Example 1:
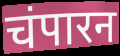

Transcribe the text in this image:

चंपारन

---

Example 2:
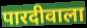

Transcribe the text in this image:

पारदीवाला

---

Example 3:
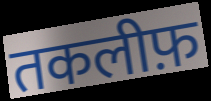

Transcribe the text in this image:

तकलीफ़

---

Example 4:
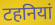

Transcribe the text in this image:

टहनियां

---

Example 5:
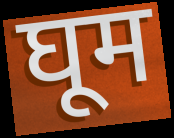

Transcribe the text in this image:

घूम